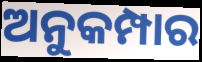
ଅନୁକମ୍ପାର